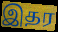
இதர